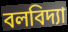
বলবিদ্যা